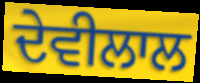
ਦੇਵੀਲਾਲ